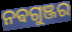
ନଵଗୁଞ୍ଜର